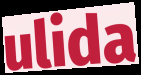
ulida